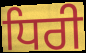
ਧਿਰੀ